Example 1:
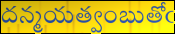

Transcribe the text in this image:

దన్మయత్వంబుతోఁ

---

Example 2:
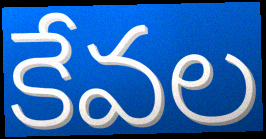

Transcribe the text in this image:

కేవల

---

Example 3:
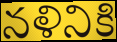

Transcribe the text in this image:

నళినికి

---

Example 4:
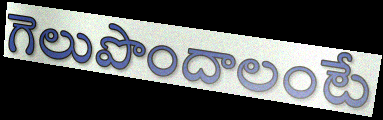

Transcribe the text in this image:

గెలుపొందాలంటే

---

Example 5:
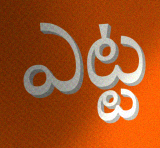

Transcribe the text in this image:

ఎట్ట